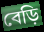
বেড়ি